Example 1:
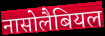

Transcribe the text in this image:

नासोलैबियल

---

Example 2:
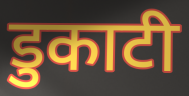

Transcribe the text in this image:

डुकाटी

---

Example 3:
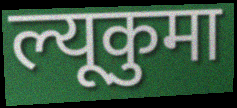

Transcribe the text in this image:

ल्यूकुमा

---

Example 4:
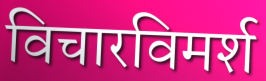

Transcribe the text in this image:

विचारविमर्श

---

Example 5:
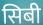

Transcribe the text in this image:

सिबी